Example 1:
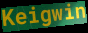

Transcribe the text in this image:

Keigwin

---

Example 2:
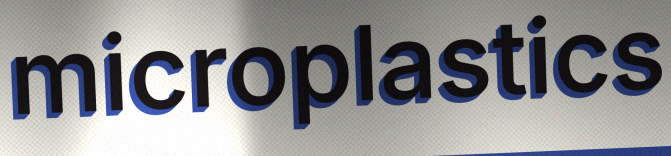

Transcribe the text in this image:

microplastics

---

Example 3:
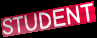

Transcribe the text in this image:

STUDENT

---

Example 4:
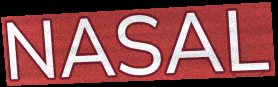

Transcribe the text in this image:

NASAL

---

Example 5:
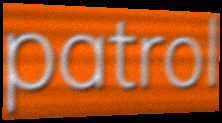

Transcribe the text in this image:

patrol